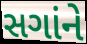
સગાંને